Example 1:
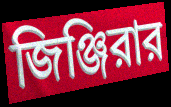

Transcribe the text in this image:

জিঞ্জিরার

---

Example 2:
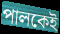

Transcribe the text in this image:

পালকেই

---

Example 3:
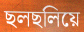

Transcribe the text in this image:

ছলছলিয়ে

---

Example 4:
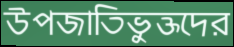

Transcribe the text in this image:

উপজাতিভুক্তদের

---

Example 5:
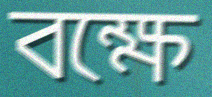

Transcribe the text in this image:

বক্ষে